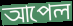
আপেল